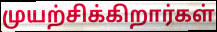
முயற்சிக்கிறார்கள்